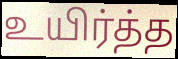
உயிர்த்த